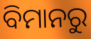
ବିମାନରୁ